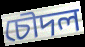
চৌদল